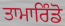
ਤਾਮਾਰਿੰਡੋ